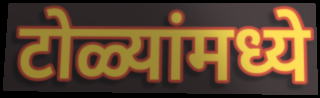
टोळ्यांमध्ये